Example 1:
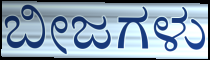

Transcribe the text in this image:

ಬೀಜಗಳು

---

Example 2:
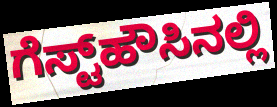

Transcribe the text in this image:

ಗೆಸ್ಟ್‌ಹೌಸಿನಲ್ಲಿ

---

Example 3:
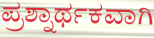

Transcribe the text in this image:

ಪ್ರಶ್ನಾರ್ಥಕವಾಗಿ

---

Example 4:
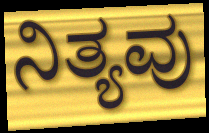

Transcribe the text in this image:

ನಿತ್ಯವು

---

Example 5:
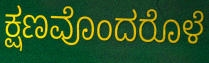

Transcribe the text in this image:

ಕ್ಷಣವೊಂದರೊಳೆ